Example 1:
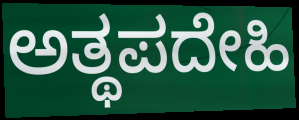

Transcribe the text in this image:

ಅತ್ಥಪದೇಹಿ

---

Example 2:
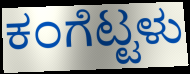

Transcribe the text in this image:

ಕಂಗೆಟ್ಟಳು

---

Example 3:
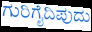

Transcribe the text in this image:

ಗುರಿಗೈದಿಪುದು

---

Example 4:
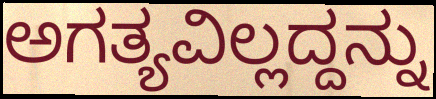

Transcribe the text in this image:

ಅಗತ್ಯವಿಲ್ಲದ್ದನ್ನು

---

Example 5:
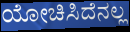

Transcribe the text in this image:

ಯೋಚಿಸಿದೆನಲ್ಲ